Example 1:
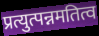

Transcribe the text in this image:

प्रत्युत्पन्नमतित्व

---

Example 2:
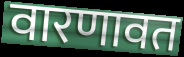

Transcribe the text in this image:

वारणावत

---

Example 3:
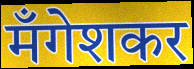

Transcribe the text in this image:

मँगेशकर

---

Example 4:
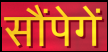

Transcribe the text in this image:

सौंपेगें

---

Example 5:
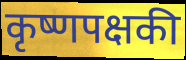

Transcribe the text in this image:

कृष्णपक्षकी